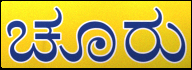
ಚೂರು